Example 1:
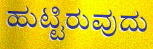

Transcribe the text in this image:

ಹುಟ್ಟಿರುವುದು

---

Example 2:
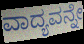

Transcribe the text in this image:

ವಾದ್ಯವನ್ನೇ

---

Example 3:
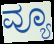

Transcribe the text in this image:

ವ್ಯೂ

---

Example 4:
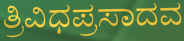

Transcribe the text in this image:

ತ್ರಿವಿಧಪ್ರಸಾದವ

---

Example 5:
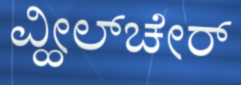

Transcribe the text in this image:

ವ್ಹೀಲ್‌ಚೇರ್